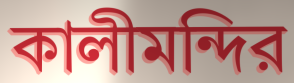
কালীমন্দির